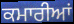
ਕਮਾਰੀਆਂ